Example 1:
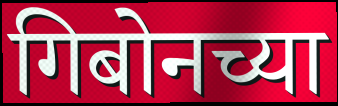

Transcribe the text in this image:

गिबोनच्या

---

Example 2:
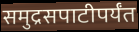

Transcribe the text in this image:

समुद्रसपाटीपर्यंत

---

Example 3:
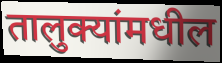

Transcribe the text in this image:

तालुक्यांमधील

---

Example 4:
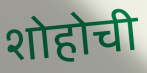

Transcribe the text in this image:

शोहोची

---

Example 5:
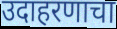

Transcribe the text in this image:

उदाहरणाचा